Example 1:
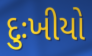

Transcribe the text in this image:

દુઃખીયો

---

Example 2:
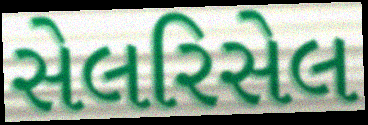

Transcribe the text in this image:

સેલરિસેલ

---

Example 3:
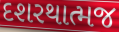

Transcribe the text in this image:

દશરથાત્મજ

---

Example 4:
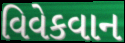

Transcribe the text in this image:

વિવેકવાન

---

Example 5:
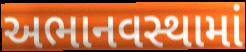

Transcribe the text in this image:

અભાનવસ્થામાં